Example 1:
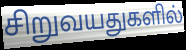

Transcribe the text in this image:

சிறுவயதுகளில்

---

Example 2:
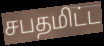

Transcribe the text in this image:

சபதமிட்ட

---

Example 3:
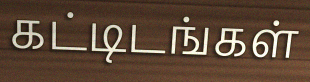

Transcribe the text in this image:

கட்டிடங்கள்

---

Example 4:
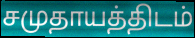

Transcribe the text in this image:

சமுதாயத்திடம்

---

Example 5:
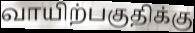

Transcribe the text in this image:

வாயிற்பகுதிக்கு